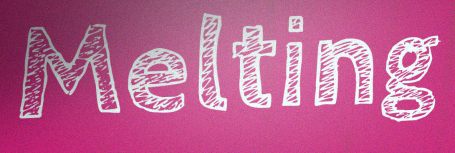
Melting